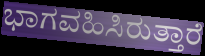
ಭಾಗವಹಿಸಿರುತ್ತಾರೆ